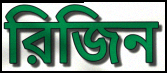
রিজিন